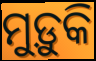
ମୁଡ଼ୁକି